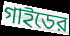
গাইডের